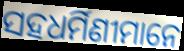
ସହଧର୍ମିଣୀମାନେ